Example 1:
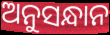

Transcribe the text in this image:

ଅନୁସନ୍ଧାନ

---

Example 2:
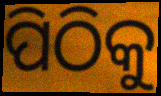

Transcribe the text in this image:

ପିଠିକୁ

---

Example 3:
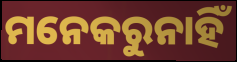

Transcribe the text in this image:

ମନେକରୁନାହିଁ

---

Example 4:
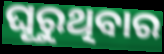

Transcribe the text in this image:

ଘୂରୁଥିବାର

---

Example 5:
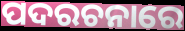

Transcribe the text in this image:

ପଦରଚନାରେ